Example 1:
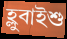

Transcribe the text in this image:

হ্লুবাইশু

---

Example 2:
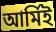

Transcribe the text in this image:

আর্মিই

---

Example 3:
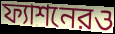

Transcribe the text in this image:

ফ্যাশনেরও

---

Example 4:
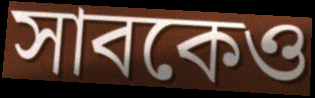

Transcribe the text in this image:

সাবকেও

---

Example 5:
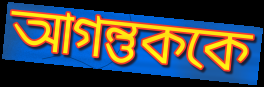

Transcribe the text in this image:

আগন্তুককে